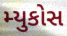
મ્યુકોસ